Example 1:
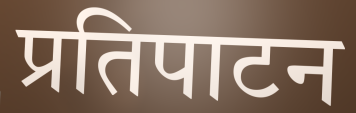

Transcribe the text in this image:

प्रतिपाटन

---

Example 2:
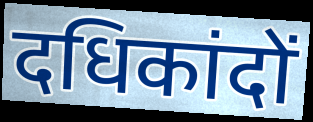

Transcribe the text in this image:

दधिकांदों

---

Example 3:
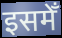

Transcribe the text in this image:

इसमेँ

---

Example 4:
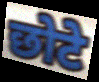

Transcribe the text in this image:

छोटे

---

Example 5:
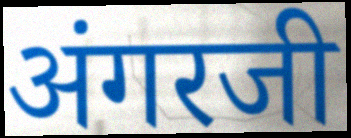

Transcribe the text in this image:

अंगरजी